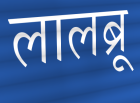
लालब्रू